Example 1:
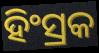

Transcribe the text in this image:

ହିଂସ୍ରକ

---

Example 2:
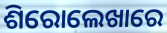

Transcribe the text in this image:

ଶିରୋଲେଖାରେ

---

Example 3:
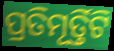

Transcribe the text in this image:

ପ୍ରତିମୂର୍ତ୍ତିଟି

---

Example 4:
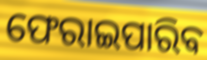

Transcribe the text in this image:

ଫେରାଇପାରିବ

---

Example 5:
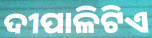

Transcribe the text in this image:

ଦୀପାଳିଟିଏ